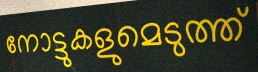
നോട്ടുകളുമെടുത്ത്